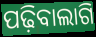
ପଢ଼ିବାଲାଗି